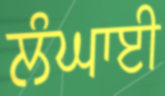
ਲੰਘਾਈ